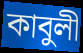
কাবুলী